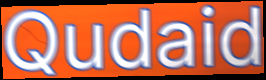
Qudaid